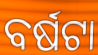
ବର୍ଷଟା